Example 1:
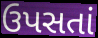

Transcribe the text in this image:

ઉપસતાં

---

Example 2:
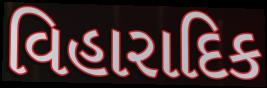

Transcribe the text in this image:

વિહારાદિક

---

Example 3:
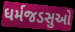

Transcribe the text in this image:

ધર્મજડસુઓ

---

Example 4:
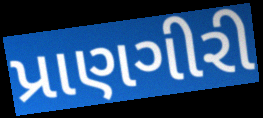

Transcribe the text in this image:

પ્રાણગીરી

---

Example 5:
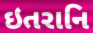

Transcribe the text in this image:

ઇતરાનિ